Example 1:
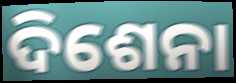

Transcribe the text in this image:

ଦିଶେନା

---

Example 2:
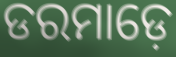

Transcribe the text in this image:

ଡରମାଡ଼େ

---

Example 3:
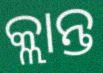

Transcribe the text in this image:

କ୍ଲାନ୍ତ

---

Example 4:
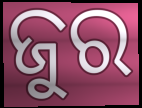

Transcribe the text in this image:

ଜୁର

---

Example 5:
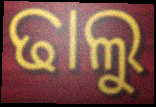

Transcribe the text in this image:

ଢାଲୁ